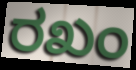
ರಖಂ